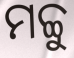
ମଚ୍ଚୁ